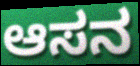
ಆಸನ